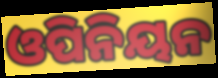
ଓପିନିୟନ